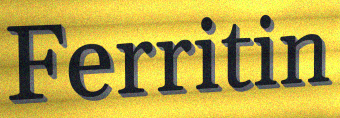
Ferritin